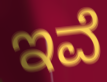
ಇವೆ